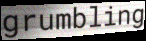
grumbling